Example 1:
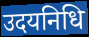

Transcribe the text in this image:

उदयनिधि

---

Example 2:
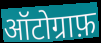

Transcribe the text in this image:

ऑटोग्राफ़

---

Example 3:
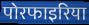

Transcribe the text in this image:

पोरफाइरिया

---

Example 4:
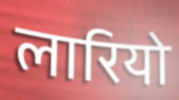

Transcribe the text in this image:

लारियो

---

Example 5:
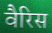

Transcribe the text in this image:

वैरिस